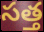
సత్త